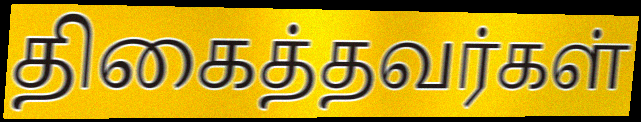
திகைத்தவர்கள்